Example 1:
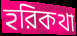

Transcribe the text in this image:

হরিকথা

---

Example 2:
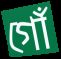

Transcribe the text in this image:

গোঁ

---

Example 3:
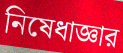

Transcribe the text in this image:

নিষেধাজ্ঞার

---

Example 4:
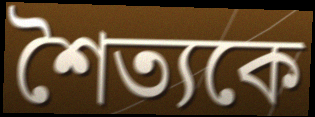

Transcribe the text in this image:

শৈত্যকে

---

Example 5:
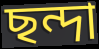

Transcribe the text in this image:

ছন্দা